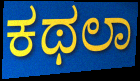
ಕಥಲಾ